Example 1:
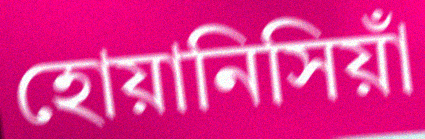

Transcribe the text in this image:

হোয়ানিসিয়াঁ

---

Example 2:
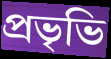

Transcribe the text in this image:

প্রভৃভি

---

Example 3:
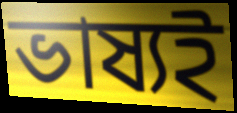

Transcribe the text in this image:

ভাষ্যই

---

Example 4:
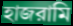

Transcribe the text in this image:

হাজরামি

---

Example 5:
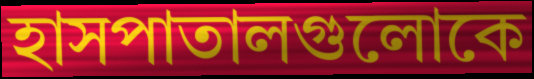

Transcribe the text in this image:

হাসপাতালগুলোকে